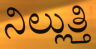
ನಿಲ್ಲುತ್ತಿ